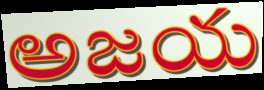
అజయ